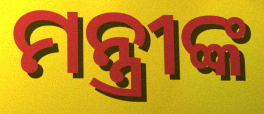
ମନ୍ତ୍ରୀଙ୍କ